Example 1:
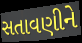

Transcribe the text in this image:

સતાવણીને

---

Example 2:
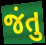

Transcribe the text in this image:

જંતુ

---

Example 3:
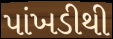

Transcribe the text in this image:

પાંખડીથી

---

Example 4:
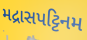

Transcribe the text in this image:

મદ્રાસપટ્ટિનમ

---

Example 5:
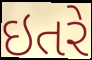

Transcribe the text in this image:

ઇતરે